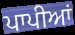
ਪਾਪੀਆਂ